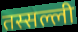
तस्सल्ली